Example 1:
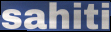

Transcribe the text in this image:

sahiti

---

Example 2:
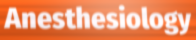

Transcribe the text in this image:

Anesthesiology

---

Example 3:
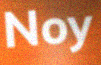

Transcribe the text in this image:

Noy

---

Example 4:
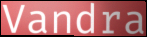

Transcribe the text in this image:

Vandra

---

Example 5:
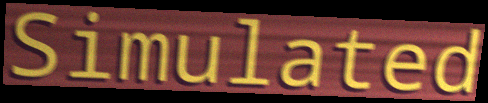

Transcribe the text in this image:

Simulated